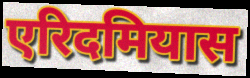
एरिदमियास